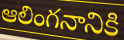
ఆలింగనానికి